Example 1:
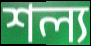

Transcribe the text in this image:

শল্য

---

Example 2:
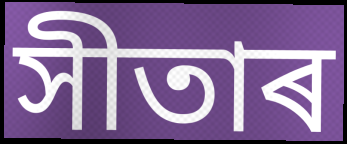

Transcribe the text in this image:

সীতাৰ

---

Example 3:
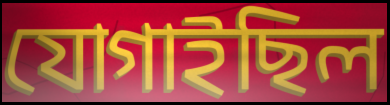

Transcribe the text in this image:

যোগাইছিল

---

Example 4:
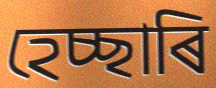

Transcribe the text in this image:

হেচ্ছাৰি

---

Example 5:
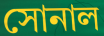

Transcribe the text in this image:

সোনাল